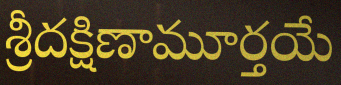
శ్రీదక్షిణామూర్తయే